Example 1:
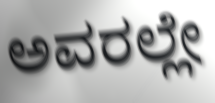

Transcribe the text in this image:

ಅವರಲ್ಲೇ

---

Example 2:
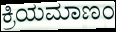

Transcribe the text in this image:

ಕ್ರಿಯಮಾಣಂ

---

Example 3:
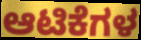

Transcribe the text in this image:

ಆಟಿಕೆಗಳ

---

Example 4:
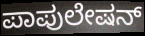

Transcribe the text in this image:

ಪಾಪುಲೇಷನ್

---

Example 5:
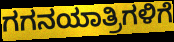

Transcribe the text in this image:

ಗಗನಯಾತ್ರಿಗಳಿಗೆ